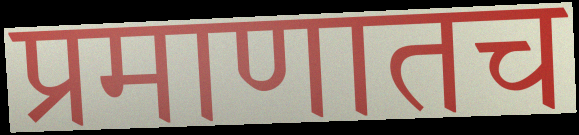
प्रमाणातच